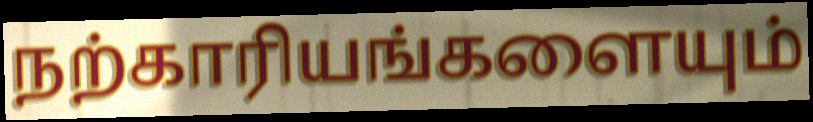
நற்காரியங்களையும்